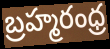
బ్రహ్మరంధ్ర